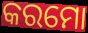
କରମୋ